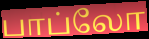
பாப்லோ